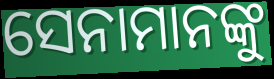
ସେନାମାନଙ୍କୁ